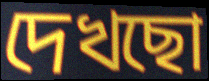
দেখছো